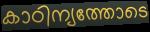
കാഠിന്യത്തോടെ